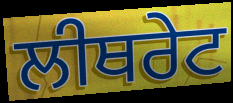
ਲੀਥਰੇਟ